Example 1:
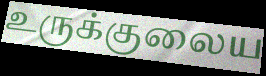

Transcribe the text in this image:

உருக்குலைய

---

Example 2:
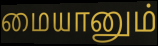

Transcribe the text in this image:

மையானும்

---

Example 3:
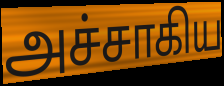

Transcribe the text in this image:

அச்சாகிய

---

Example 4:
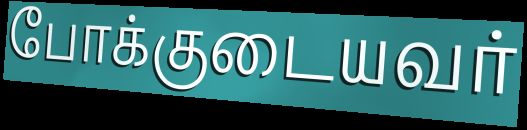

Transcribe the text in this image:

போக்குடையவர்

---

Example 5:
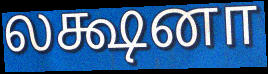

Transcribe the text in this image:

லக்ஷனா